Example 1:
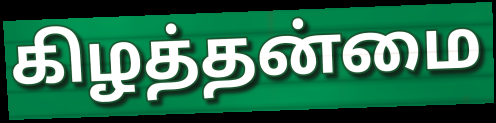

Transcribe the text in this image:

கிழத்தன்மை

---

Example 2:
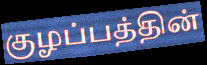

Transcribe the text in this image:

குழப்பத்தின்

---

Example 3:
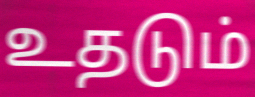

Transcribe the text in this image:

உதடும்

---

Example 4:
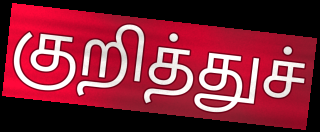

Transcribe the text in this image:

குறித்துச்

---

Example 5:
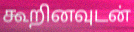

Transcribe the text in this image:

கூறினவுடன்